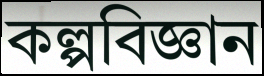
কল্পবিজ্ঞান